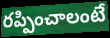
రప్పించాలంటే